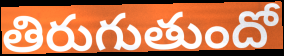
తిరుగుతుందో